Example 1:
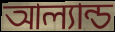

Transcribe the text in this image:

আল্যান্ড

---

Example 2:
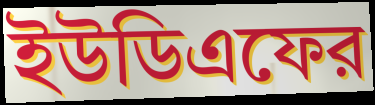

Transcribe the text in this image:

ইউডিএফের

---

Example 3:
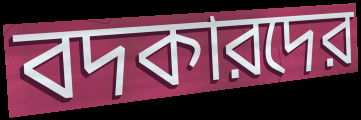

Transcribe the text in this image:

বদকারদের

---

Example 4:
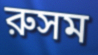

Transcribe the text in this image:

রুসম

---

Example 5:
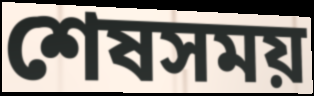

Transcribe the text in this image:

শেষসময়